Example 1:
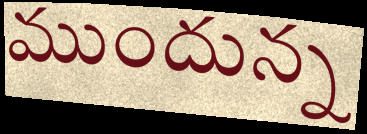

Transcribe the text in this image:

ముందున్న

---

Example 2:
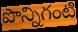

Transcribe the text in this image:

పొన్నిగంటి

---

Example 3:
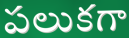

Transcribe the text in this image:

పలుకగా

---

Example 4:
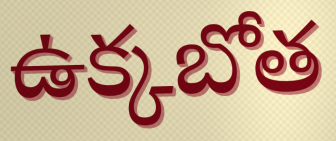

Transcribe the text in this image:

ఉక్కబోత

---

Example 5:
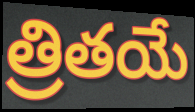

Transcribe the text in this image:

త్రితయే